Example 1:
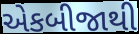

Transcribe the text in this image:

એકબીજાથી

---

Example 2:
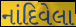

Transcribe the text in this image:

નાંદિવેલા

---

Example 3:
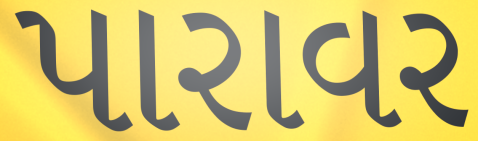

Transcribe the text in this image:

પારાવર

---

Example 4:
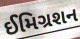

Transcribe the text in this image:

ઈમિગ્રશન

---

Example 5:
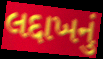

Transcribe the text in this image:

લદ્દાખનું